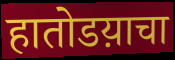
हातोडय़ाचा